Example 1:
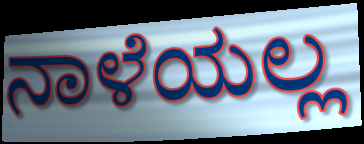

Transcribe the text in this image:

ನಾಳೆಯಲ್ಲ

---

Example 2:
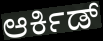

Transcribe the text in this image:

ಆರ್ಕಿಡ್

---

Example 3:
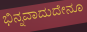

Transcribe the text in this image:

ಭಿನ್ನವಾದುದೇನೂ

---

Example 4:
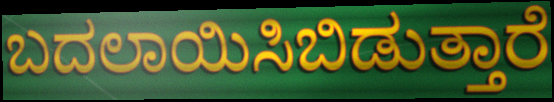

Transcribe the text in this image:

ಬದಲಾಯಿಸಿಬಿಡುತ್ತಾರೆ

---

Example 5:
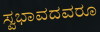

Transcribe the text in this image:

ಸ್ವಭಾವದವರೂ